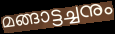
മങ്ങാട്ടച്ചനും